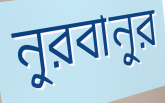
নুরবানুর